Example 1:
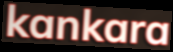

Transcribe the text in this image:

kankara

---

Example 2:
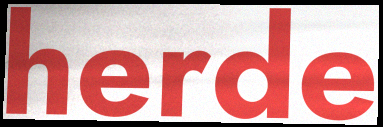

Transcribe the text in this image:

herde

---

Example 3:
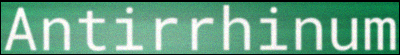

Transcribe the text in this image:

Antirrhinum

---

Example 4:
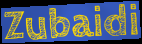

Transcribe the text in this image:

Zubaidi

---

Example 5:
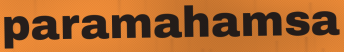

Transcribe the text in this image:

paramahamsa